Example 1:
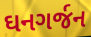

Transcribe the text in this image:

ઘનગર્જન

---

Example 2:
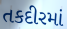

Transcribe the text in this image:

તકદીરમાં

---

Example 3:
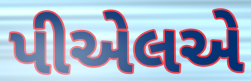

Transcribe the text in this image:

પીએલએ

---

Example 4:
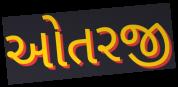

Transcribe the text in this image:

ઓતરજી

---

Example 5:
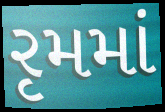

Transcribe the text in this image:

રૃમમાં